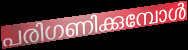
പരിഗണിക്കുമ്പോൾ